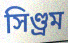
সিণ্ড্ৰম